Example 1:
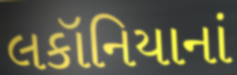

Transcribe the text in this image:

લકૉનિયાનાં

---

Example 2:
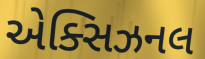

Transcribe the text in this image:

એક્સિઝનલ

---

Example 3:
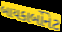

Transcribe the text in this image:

બાયકાર્બોનેટ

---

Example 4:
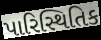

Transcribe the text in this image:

પારિસ્થિતિક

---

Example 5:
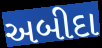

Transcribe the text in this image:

અબીદા